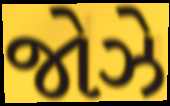
જોઝે